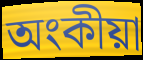
অংকীয়া